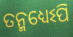
ତନ୍ମଧ୍ୟେଽପି